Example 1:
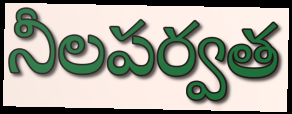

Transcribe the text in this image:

నీలపర్వత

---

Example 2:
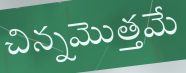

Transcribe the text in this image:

చిన్నమొత్తమే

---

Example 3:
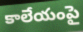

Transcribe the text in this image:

కాలేయంపై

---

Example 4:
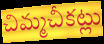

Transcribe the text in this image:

చిమ్మచీకట్లు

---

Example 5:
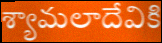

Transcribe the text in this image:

శ్యామలాదేవికి